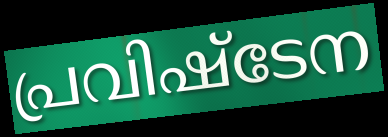
പ്രവിഷ്ടേന